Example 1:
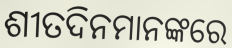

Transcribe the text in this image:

ଶୀତଦିନମାନଙ୍କରେ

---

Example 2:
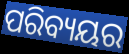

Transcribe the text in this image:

ପରିବ୍ୟୟର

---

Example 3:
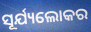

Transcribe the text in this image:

ସୂର୍ଯ୍ୟଲୋକର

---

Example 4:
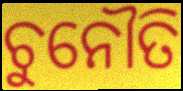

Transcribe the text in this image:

ଚୁନୌତି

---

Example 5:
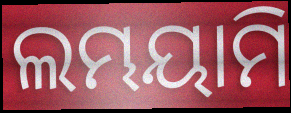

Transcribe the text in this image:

ଲମ୍ଭୟାମି